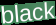
black